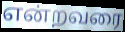
என்றவரை